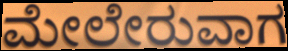
ಮೇಲೇರುವಾಗ